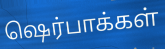
ஷெர்பாக்கள்